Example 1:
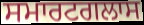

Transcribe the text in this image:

ਸਮਾਰਟਗਲਾਸ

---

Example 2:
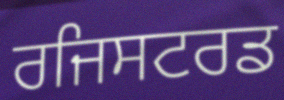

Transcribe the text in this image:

ਰਜਿਸਟਰਡ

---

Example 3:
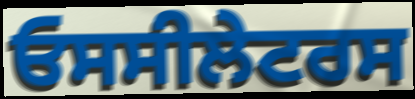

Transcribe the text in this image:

ਓਸਸੀਲੇਟਰਸ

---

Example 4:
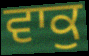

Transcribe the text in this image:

ਵਾਕੁ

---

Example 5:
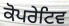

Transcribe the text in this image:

ਕੋਪਰੇਟਿਵ